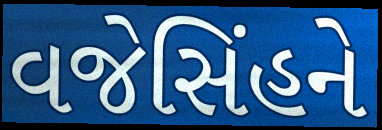
વજેસિંહને